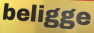
beligge